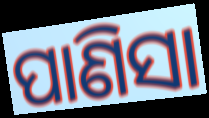
ପାଣିସା